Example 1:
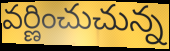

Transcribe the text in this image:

వర్ణించుచున్న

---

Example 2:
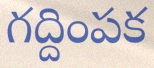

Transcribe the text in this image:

గద్దింపక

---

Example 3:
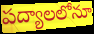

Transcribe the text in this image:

పద్యాలలోనూ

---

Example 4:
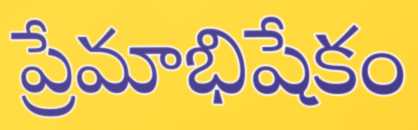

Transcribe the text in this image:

ప్రేమాభిషేకం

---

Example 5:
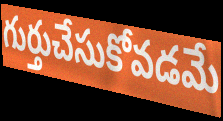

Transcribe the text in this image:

గుర్తుచేసుకోవడమే